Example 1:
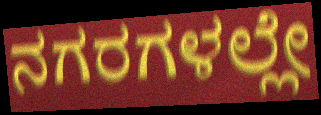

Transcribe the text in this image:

ನಗರಗಳಲ್ಲೇ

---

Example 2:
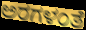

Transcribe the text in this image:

ಅರಗಳಂತೆ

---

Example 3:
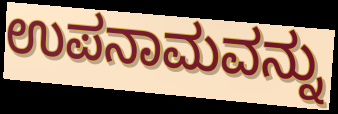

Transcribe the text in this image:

ಉಪನಾಮವನ್ನು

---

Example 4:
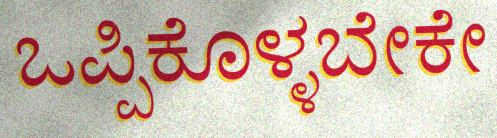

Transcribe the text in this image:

ಒಪ್ಪಿಕೊಳ್ಳಬೇಕೇ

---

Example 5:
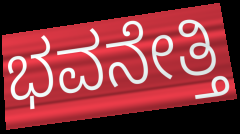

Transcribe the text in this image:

ಭವನೇತ್ತಿ